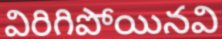
విరిగిపోయినవి